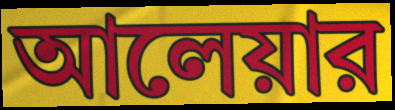
আলেয়ার